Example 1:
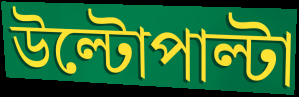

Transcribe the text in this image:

উল্টোপাল্টা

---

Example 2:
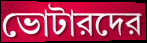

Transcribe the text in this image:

ভোটারদের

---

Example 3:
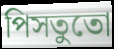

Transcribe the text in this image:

পিসতুতো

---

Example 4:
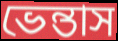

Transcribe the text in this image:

ভেন্তাস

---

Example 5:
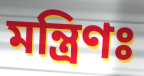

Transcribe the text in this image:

মন্ত্রিণঃ